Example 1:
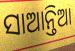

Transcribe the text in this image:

ସାଆନ୍ତିଆ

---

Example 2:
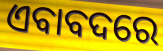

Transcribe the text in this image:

ଏବାବଦରେ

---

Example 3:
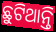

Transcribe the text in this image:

ଛୁଟିଥାନ୍ତି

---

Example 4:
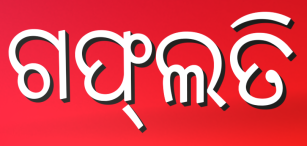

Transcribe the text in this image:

ଗଫ୍‌ଲତି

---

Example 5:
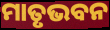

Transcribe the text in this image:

ମାତୃଭବନ